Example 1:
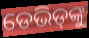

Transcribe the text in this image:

ଡେଭିଡ୍‌ଙ୍କୁ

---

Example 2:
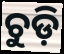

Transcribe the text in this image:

ଚୁଡ଼ି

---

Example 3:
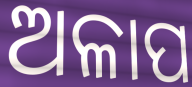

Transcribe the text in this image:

ଅଳାପ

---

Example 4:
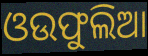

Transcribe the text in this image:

ଓଉଫୁଲିଆ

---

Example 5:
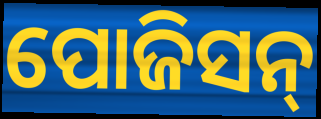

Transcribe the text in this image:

ପୋଜିସନ୍